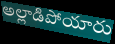
అల్లాడిపోయారు